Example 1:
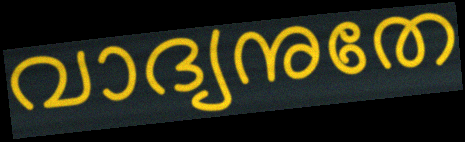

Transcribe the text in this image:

വാദ്യനുതേ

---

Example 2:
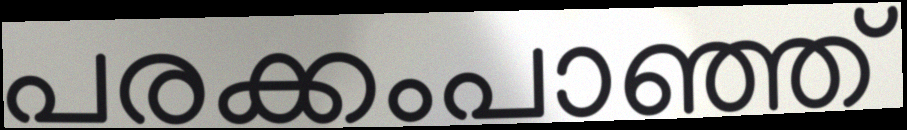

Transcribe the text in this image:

പരക്കംപാഞ്ഞ്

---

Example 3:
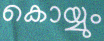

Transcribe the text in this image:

കൊയ്യും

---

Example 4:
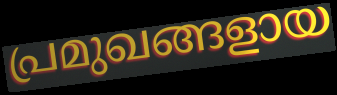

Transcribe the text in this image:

പ്രമുഖങ്ങളായ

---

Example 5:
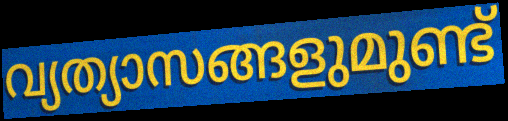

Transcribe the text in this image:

വ്യത്യാസങ്ങളുമുണ്ട്